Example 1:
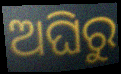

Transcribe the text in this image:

ଅଘିରୁ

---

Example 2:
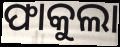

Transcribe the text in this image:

ଫାକୁଲା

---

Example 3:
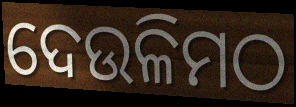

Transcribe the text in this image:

ଦେଉଳିମଠ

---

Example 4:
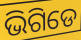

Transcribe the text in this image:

ଭିଗିଡେ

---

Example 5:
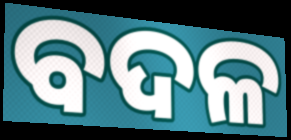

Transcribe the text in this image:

ବଦଳ